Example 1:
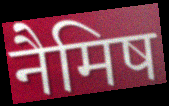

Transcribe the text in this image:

नैमिष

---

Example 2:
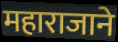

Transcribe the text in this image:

महाराजाने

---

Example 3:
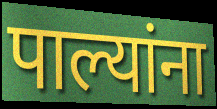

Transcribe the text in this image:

पाल्यांना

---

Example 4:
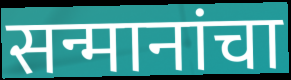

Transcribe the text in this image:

सन्मानांचा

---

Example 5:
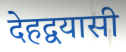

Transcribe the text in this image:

देहद्वयासी